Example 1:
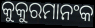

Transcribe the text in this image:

କୁକୁରମାନଂକ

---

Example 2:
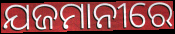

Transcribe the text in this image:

ଯଜମାନୀରେ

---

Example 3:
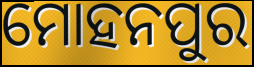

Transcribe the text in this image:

ମୋହନପୁର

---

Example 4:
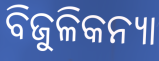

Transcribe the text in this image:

ବିଜୁଳିକନ୍ୟା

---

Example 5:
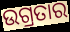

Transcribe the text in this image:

ଉଗ୍ରତାର